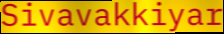
Sivavakkiyar